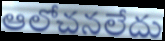
ఆలోచనలేదు